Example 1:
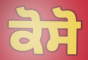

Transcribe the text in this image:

ਕੋਸੋ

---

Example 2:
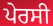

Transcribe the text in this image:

ਪੇਰਸੀ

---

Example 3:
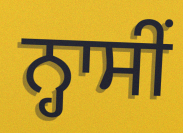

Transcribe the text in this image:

ਨ੍ਹਾਸੀਂ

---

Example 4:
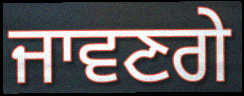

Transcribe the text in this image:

ਜਾਵਣਗੇ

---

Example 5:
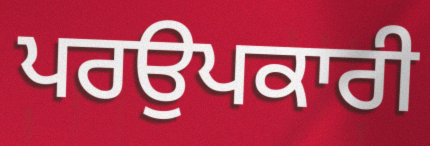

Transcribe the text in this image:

ਪਰਉਪਕਾਰੀ